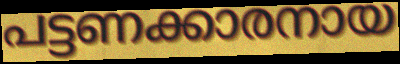
പട്ടണക്കാരനായ